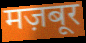
मज़बूर